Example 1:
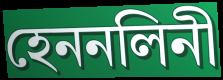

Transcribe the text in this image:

হেননলিনী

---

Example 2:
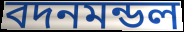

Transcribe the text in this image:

বদনমন্ডল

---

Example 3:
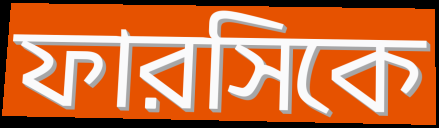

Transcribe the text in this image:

ফারসিকে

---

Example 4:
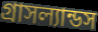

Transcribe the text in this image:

গ্রাসল্যান্ডস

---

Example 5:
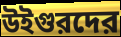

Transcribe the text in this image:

উইগুরদের